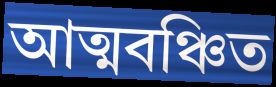
আত্মবঞ্চিত